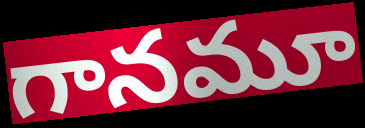
గానమూ